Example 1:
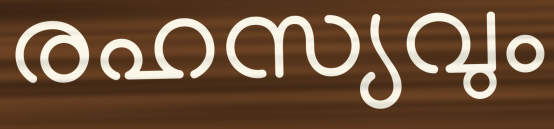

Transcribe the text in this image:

രഹസ്യവും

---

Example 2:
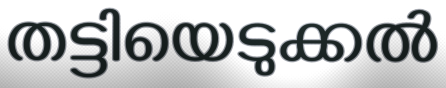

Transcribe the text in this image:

തട്ടിയെടുക്കൽ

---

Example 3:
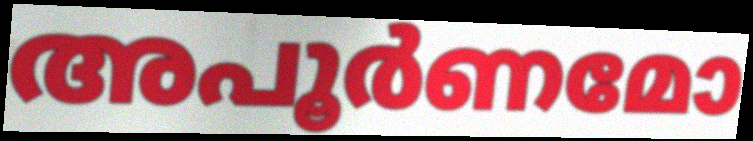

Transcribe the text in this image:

അപൂർണമോ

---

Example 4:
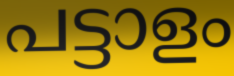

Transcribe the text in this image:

പട്ടാളം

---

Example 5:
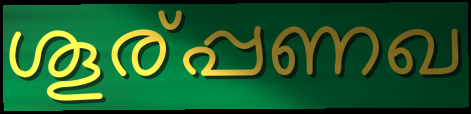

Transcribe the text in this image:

ശൂര്പ്പണഖ